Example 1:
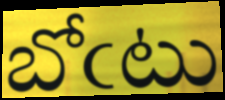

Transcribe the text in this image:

బోఁటు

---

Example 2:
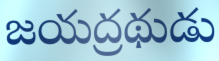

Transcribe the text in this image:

జయద్రథుడు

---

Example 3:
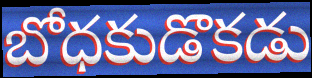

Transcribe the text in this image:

బోధకుడొకడు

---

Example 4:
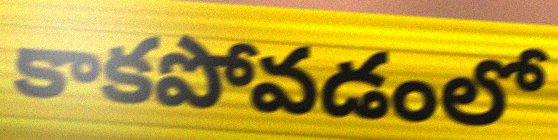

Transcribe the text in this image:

కాకపోవడంలో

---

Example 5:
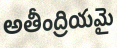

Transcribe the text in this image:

అతీంద్రియమై